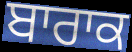
ਬਾਰਾਕ